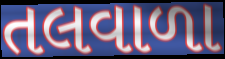
તલવાળા